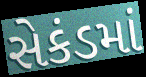
સેકંડમાં